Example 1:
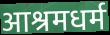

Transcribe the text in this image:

आश्रमधर्म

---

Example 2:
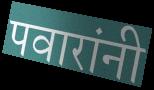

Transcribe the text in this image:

पवारांनी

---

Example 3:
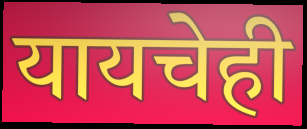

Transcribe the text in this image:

यायचेही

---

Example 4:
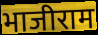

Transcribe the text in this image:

भाजीराम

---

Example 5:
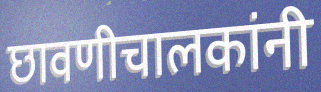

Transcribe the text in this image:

छावणीचालकांनी